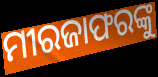
ମୀରଜାଫରଙ୍କୁ